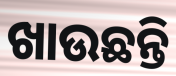
ଖାଉଛନ୍ତି